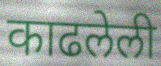
काढलेली